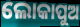
ଲୋକାପୁଅ